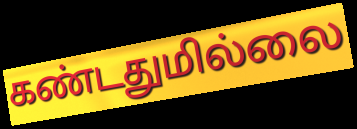
கண்டதுமில்லை